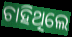
ଚାହିଥିଲେ